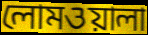
লোমওয়ালা